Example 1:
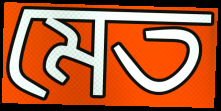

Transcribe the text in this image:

মেত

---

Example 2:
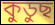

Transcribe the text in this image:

কুডুছ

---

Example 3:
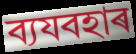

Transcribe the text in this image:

ব্যযবহাৰ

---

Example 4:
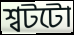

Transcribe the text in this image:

শ্বটটো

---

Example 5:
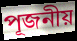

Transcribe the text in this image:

পূজনীয়